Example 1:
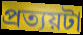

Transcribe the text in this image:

প্রত্যয়টা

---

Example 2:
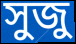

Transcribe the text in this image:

সুজু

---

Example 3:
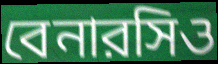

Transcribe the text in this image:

বেনারসিও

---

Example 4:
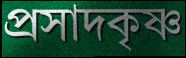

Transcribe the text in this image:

প্রসাদকৃষ্ণ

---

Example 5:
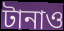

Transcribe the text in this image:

টানাও